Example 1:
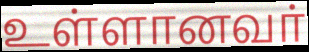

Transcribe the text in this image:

உள்ளானவர்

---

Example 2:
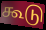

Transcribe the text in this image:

கூடு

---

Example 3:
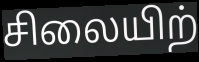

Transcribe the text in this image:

சிலையிற்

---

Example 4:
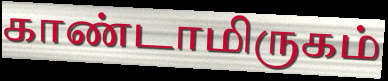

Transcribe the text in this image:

காண்டாமிருகம்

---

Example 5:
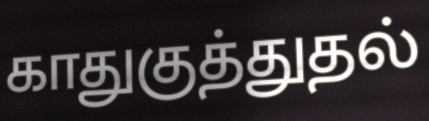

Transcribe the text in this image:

காதுகுத்துதல்